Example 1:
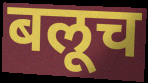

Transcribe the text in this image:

बलूच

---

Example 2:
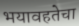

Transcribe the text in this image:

भयावहतेचा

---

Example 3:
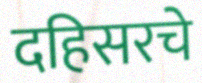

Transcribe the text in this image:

दहिसरचे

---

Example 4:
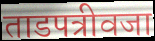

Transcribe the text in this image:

ताडपत्रीवजा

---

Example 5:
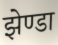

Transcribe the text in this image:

झेण्डा